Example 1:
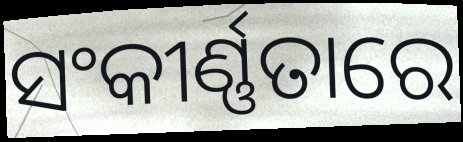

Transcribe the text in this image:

ସଂକୀର୍ଣ୍ଣତାରେ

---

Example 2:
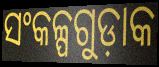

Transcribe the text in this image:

ସଂକଳ୍ପଗୁଡ଼ାକ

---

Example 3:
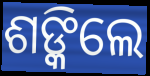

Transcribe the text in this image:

ଶଙ୍କିଲେ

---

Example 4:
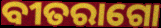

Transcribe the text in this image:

ବୀତରାଗୋ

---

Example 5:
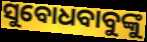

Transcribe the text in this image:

ସୁବୋଧବାବୁଙ୍କୁ